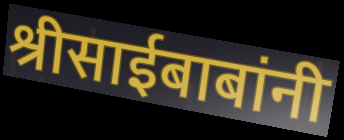
श्रीसाईबाबांनी